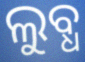
ଲୁବ୍ଧ